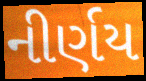
નીર્ણય